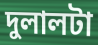
দুলালটা